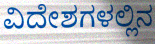
ವಿದೇಶಗಳಲ್ಲಿನ